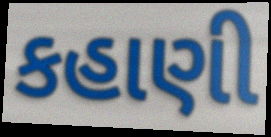
કહાણી